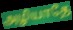
அழியாதே